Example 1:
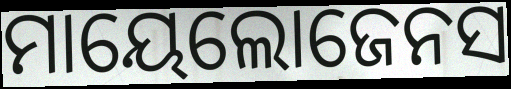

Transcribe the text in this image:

ମାୟେଲୋଜେନସ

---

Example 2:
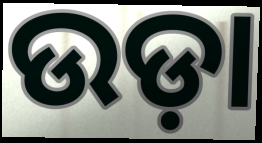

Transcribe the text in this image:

ଉଡ଼ା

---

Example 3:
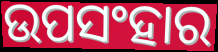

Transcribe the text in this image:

ଉପସଂହାର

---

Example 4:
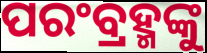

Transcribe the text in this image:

ପରଂବ୍ରହ୍ମଙ୍କୁ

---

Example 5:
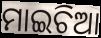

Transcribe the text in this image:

ମାଇଚିଆ